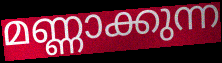
മണ്ണാക്കുന്ന